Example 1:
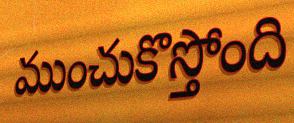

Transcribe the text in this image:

ముంచుకొస్తోంది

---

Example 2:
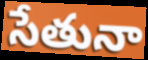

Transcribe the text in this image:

సేతునా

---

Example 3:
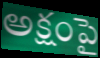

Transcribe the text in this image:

అక్షంపై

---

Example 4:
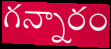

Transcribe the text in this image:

గన్నారం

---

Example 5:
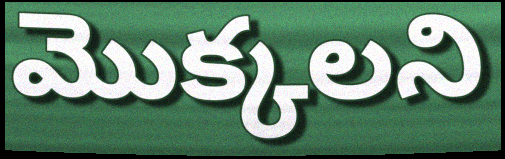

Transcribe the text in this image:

మొక్కలని